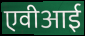
एवीआई